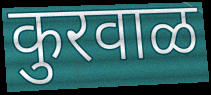
कुरवाळ